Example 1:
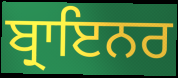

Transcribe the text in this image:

ਬ੍ਰਾਇਨਰ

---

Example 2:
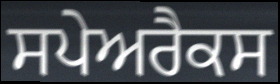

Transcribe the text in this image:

ਸਪੇਅਰੈਕਸ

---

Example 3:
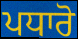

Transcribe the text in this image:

ਪਧਾਰੋ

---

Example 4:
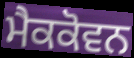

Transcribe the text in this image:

ਮੈਕਕੋਵਨ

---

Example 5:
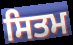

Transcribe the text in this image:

ਸਿਤਮ